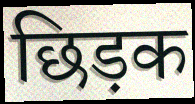
छिड़क